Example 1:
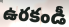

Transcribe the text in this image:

ఉరకండీ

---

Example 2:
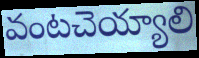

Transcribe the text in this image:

వంటచెయ్యాలి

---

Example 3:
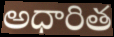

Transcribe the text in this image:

అధారిత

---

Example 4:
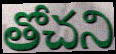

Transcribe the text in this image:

తోచని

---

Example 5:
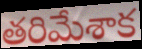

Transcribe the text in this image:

తరిమేశాక